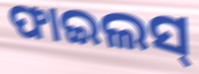
ଫାଇଲସ୍